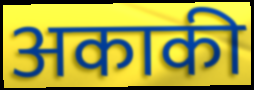
अकाकी